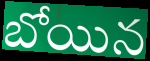
బోయిన